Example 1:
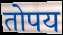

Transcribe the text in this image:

तोपय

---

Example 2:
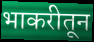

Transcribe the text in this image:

भाकरीतून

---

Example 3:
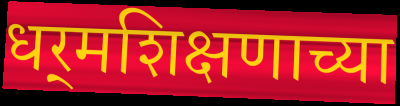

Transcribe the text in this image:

धर्मशिक्षणाच्या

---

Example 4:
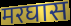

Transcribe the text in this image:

मरघास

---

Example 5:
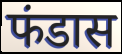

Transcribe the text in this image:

फंडास